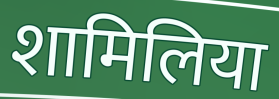
शामिलिया